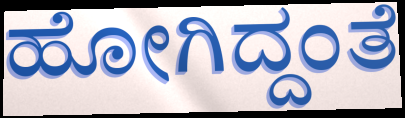
ಹೋಗಿದ್ದಂತೆ